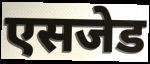
एसजेड